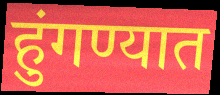
हुंगण्यात